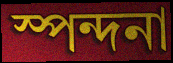
স্পন্দনা